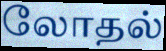
லோதல்